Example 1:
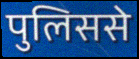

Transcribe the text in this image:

पुलिससे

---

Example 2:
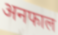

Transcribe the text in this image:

अनफाल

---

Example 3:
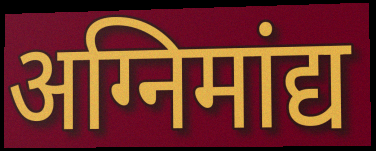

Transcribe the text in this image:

अग्निमांद्य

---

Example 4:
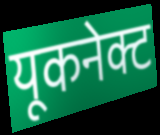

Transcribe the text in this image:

यूकनेक्ट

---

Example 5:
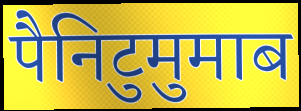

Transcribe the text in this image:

पैनिटुमुमाब